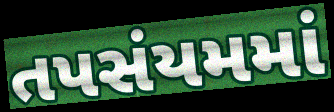
તપસંયમમાં